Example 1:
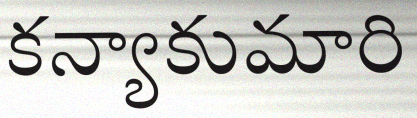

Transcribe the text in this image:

కన్యాకుమారి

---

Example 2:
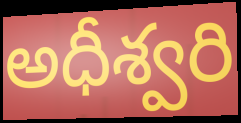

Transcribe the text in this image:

అధీశ్వరి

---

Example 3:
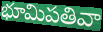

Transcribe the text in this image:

భూమిపతివా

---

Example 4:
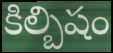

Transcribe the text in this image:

కిల్బిషం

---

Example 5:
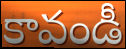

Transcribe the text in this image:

కావండీ